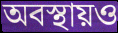
অবস্থায়ও